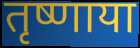
तृष्णाया